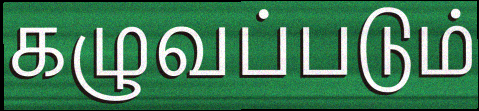
கழுவப்படும்